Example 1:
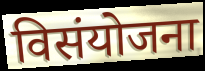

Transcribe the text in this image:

विसंयोजना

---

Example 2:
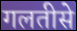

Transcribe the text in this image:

गलतीसे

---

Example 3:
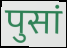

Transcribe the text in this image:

पुसां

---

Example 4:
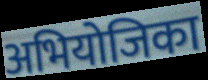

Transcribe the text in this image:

अभियोजिका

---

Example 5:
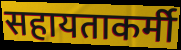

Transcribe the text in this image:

सहायताकर्मी